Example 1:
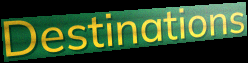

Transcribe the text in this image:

Destinations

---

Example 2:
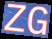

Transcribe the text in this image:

ZG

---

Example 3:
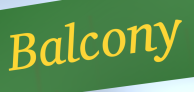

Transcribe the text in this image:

Balcony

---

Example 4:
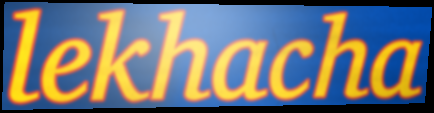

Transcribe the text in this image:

lekhacha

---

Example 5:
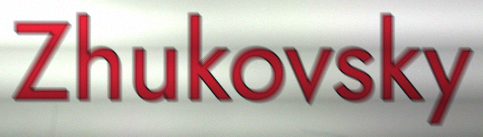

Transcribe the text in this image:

Zhukovsky